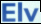
Elv